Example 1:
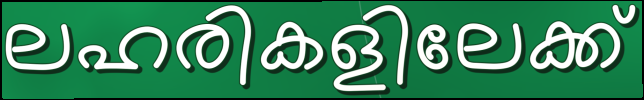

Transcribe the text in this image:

ലഹരികളിലേക്ക്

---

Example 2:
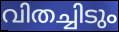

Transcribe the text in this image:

വിതച്ചിടും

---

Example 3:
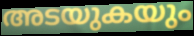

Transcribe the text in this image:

അടയുകയും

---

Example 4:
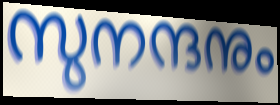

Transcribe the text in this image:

സുനന്ദനും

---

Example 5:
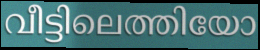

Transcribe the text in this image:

വീട്ടിലെത്തിയോ